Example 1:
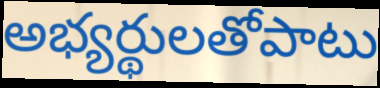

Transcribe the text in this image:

అభ్యర్థులతోపాటు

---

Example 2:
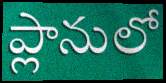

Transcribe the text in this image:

ప్లానులో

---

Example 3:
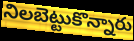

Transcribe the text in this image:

నిలబెట్టుకొన్నారు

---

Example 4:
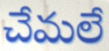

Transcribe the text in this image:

చేమలే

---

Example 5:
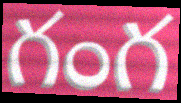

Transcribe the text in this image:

గంగ